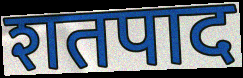
शतपाद